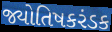
જ્યોતિષકરંડક